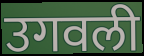
उगवली